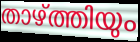
താഴ്ത്തിയും